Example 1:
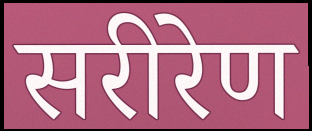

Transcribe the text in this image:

सरीरेण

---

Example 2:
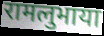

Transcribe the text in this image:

रामलुभाया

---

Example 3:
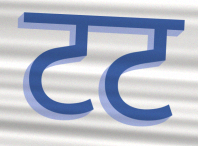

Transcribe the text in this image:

टट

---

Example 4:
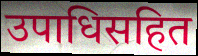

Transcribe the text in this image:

उपाधिसहित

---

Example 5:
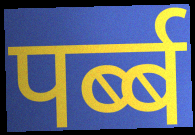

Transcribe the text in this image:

पर्ब्ब